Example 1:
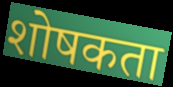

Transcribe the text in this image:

शोषकता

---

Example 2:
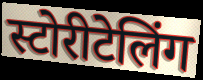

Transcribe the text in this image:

स्टोरीटेलिंग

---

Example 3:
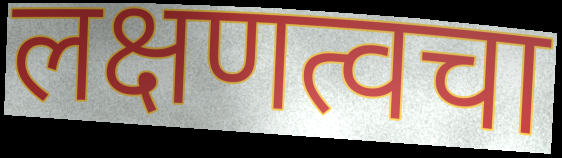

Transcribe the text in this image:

लक्षणत्वचा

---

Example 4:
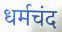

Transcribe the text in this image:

धर्मचंद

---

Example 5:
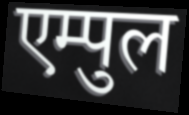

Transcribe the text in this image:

एम्पुल